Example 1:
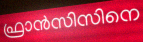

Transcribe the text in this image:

ഫ്രാൻസിസിനെ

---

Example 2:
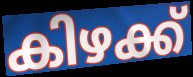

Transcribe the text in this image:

കിഴക്ക്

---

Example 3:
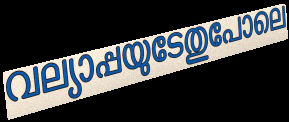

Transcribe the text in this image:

വല്യാപ്പയുടേതുപോലെ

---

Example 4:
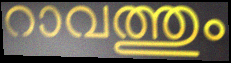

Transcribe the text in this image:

റാവത്തും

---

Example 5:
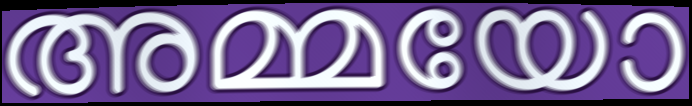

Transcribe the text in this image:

അമ്മയോ